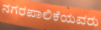
ನಗರಪಾಲಿಕೆಯವರು